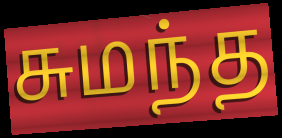
சுமந்த